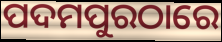
ପଦମପୁରଠାରେ